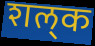
शल्क